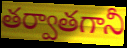
తర్వాతగానీ